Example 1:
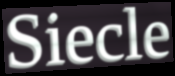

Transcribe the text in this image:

Siecle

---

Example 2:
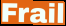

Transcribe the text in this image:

Frail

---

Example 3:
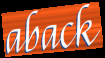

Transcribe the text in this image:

aback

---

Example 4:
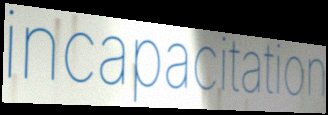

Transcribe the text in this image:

incapacitation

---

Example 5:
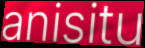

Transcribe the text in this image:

anisitu